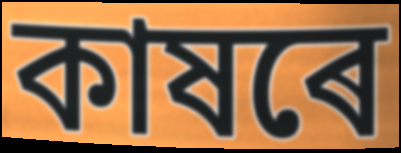
কাষৰে